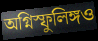
অগ্নিস্ফুলিঙ্গও